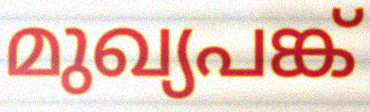
മുഖ്യപങ്ക്